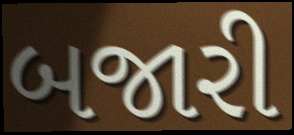
બજારી